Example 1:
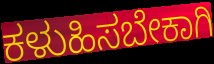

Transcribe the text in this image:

ಕಳುಹಿಸಬೇಕಾಗಿ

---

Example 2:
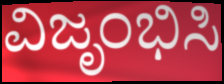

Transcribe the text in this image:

ವಿಜೃಂಭಿಸಿ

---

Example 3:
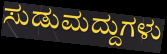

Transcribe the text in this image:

ಸುಡುಮದ್ದುಗಳು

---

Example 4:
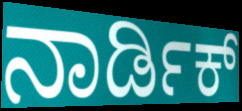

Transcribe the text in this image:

ನಾರ್ಡಿಕ್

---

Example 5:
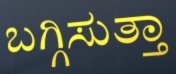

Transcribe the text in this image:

ಬಗ್ಗಿಸುತ್ತಾ